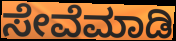
ಸೇವೆಮಾಡಿ